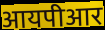
आयपीआर